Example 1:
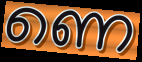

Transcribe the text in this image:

ണെ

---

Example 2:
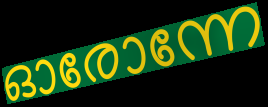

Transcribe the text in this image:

ഓരോന്നേ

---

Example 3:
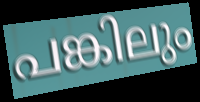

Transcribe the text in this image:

പങ്കിലും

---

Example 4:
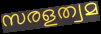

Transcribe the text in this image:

സരളത്വമ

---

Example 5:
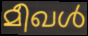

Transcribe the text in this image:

മീഖൾ